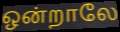
ஒன்றாலே